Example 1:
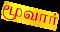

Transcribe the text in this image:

மூவார்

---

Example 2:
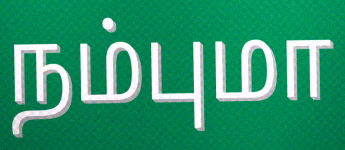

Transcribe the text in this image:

நம்புமா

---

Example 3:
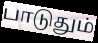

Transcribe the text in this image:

பாடுதும்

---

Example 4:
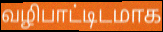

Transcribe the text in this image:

வழிபாட்டிடமாக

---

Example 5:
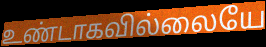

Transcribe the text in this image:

உண்டாகவில்லையே